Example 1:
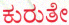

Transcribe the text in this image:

ಕುರುತೇ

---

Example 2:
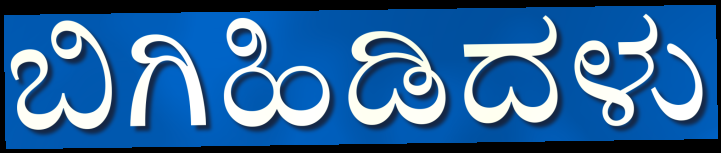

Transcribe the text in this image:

ಬಿಗಿಹಿಡಿದಳು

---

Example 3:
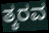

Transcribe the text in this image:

ತ್ಕರವ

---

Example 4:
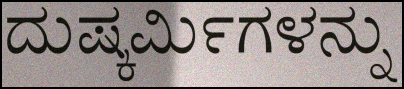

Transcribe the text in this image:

ದುಷ್ಕರ್ಮಿಗಳನ್ನು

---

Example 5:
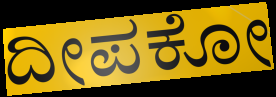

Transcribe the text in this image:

ದೀಪಕೋ